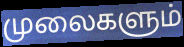
முலைகளும்